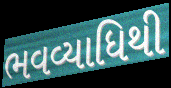
ભવવ્યાધિથી